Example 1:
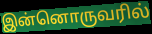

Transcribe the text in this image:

இன்னொருவரில்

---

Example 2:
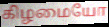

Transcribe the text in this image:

கிழமையோ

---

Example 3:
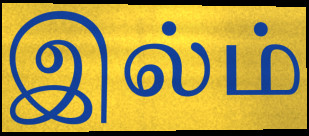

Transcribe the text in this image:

இல்ம்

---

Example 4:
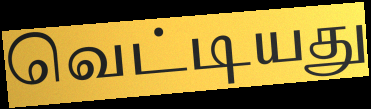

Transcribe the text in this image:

வெட்டியது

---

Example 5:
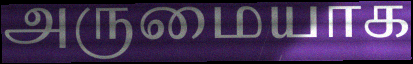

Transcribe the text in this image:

அருமையாக